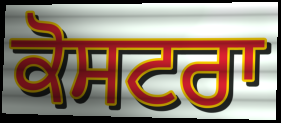
ਕੋਸਟਰਾ